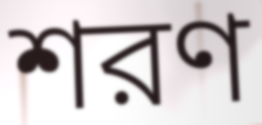
শরণ